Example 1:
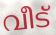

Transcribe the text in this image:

വീട്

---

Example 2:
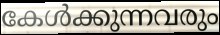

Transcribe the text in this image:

കേൾക്കുന്നവരും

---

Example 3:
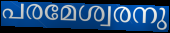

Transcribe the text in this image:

പരമേശ്വരനു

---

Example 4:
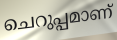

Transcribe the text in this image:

ചെറുപ്പമാണ്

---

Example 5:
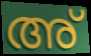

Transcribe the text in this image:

അ്